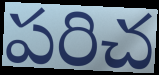
పరిచ